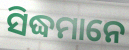
ସିଦ୍ଧମାନେ